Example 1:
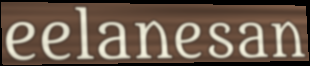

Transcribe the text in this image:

eelanesan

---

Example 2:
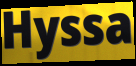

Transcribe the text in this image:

Hyssa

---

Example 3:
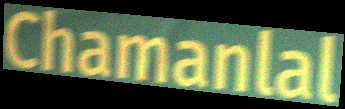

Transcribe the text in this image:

Chamanlal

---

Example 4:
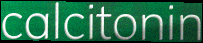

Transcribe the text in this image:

calcitonin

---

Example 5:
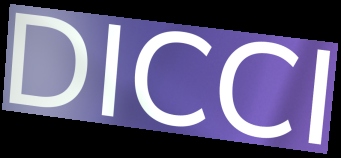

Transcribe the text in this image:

DICCI